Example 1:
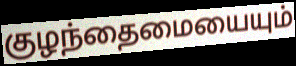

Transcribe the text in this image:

குழந்தைமையையும்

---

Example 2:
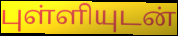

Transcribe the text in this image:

புள்ளியுடன்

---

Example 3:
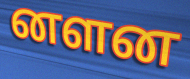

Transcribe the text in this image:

னளன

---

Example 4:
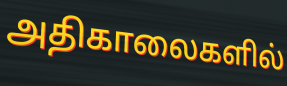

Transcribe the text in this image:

அதிகாலைகளில்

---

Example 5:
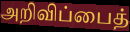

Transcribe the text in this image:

அறிவிப்பைத்